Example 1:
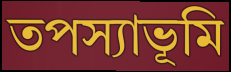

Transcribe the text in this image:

তপস্যাভূমি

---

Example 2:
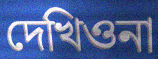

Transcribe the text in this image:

দেখিওনা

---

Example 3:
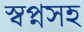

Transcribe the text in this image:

স্বপ্নসহ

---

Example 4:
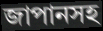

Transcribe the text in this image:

জাপানসহ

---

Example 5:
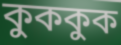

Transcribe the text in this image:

কুককুক